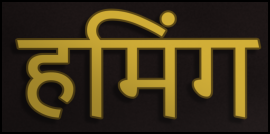
हमिंग